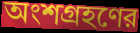
অংশগ্রহণের